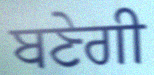
ਬਣੇਗੀ